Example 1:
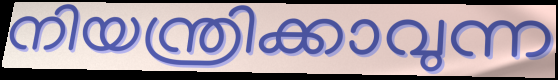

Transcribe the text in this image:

നിയന്ത്രിക്കാവുന്ന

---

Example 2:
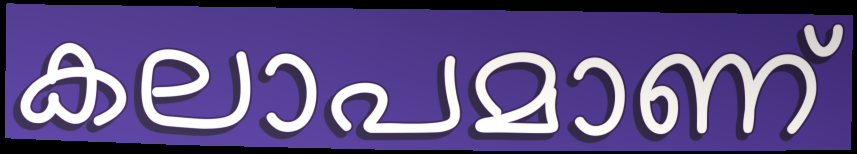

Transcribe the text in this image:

കലാപമാണ്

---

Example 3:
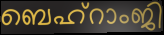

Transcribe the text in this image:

ബെഹ്റാംജി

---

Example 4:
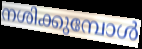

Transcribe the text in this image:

നശിക്കുമ്പോൾ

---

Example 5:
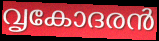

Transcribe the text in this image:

വൃകോദരൻ